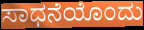
ಸಾಧನೆಯೊಂದು